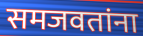
समजवतांना